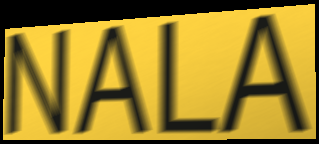
NALA